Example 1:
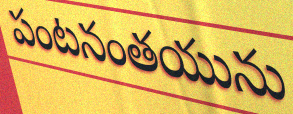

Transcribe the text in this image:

పంటనంతయును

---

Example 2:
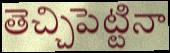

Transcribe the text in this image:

తెచ్చిపెట్టినా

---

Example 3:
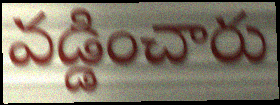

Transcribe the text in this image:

వడ్డించారు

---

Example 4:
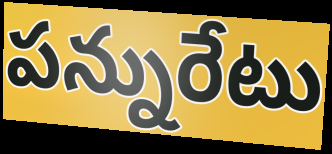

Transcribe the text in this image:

పన్నురేటు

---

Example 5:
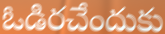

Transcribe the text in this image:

ఓడిరచేందుకు